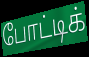
போட்டிக்